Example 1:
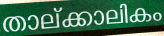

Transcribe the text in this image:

താല്ക്കാലികം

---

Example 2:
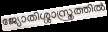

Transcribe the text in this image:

ജ്യോതിശ്ശാസ്ത്രത്തിൽ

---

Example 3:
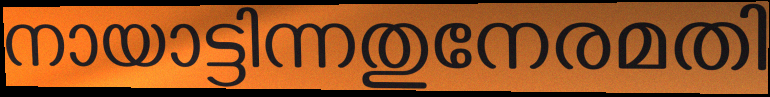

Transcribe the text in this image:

നായാട്ടിന്നതുനേരമതി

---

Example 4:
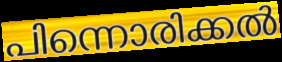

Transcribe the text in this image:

പിന്നൊരിക്കൽ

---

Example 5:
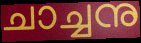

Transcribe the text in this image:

ചാച്ചനു